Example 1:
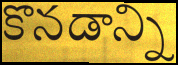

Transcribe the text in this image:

కొనడాన్ని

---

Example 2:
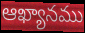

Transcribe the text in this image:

ఆఖ్యానము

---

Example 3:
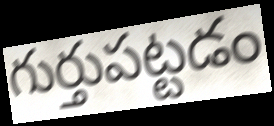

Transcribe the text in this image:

గుర్తుపట్టడం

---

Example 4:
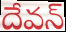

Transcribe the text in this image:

దేవన్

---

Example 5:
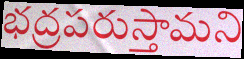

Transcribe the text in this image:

భద్రపరుస్తామని